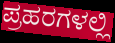
ಪ್ರಹರಗಳಲ್ಲಿ